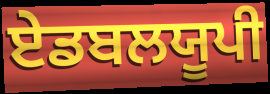
ਏਡਬਲਯੂਪੀ